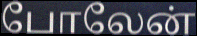
போலேன்